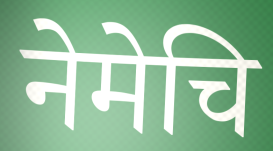
नेमेचि